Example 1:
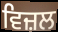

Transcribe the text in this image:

ਵਿਜ਼ਲ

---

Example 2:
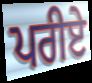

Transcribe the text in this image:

ਪਰੀਏ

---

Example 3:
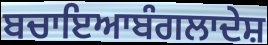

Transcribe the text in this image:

ਬਚਾਇਆਬੰਗਲਾਦੇਸ਼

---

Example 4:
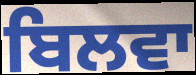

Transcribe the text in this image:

ਬਿਲਵਾ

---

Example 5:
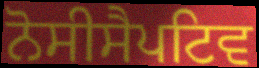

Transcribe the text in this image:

ਨੋਸੀਸੈਪਟਿਵ